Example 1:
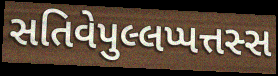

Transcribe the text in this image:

સતિવેપુલ્લપ્પત્તસ્સ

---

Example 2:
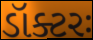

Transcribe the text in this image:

ડૉક્ટરઃ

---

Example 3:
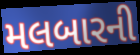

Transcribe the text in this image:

મલબારની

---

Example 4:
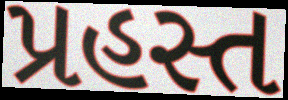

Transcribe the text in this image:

પ્રહસ્ત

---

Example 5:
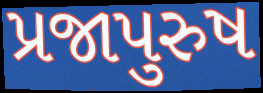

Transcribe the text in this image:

પ્રજાપુરુષ